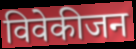
विवेकीजन